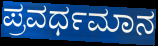
ಪ್ರವರ್ಧಮಾನ